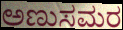
ಅಣುಸಮರ